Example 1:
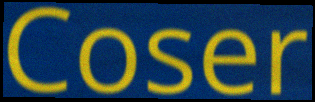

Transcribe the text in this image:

Coser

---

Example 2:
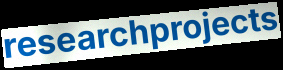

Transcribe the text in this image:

researchprojects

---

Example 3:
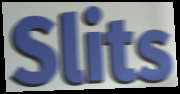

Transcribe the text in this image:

Slits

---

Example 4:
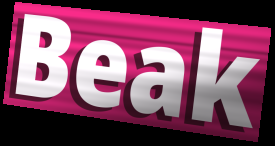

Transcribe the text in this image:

Beak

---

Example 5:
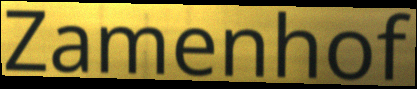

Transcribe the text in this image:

Zamenhof